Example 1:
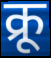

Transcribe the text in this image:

क्रू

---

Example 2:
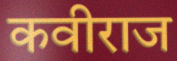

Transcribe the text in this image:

कवीराज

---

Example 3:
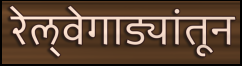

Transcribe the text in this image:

रेल्वेगाड्यांतून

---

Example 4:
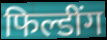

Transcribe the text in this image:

फिल्डींग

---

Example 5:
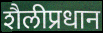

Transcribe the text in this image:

शैलीप्रधान